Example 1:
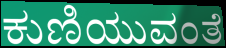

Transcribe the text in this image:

ಕುಣಿಯುವಂತೆ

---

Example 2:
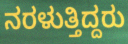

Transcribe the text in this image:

ನರಳುತ್ತಿದ್ದರು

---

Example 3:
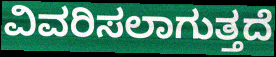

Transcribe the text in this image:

ವಿವರಿಸಲಾಗುತ್ತದೆ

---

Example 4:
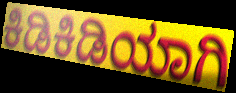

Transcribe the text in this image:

ಕಿಡಿಕಿಡಿಯಾಗಿ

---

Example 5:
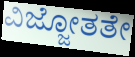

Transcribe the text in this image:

ವಿಜ್ಜೋತತೇ